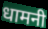
धामनी